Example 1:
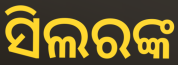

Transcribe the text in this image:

ସିଲରଙ୍କ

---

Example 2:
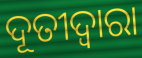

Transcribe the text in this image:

ଦୂତୀଦ୍ୱାରା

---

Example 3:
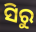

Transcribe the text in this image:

ସିରୁ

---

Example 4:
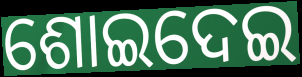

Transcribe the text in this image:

ଶୋଇଦେଇ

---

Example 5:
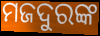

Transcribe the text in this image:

ମଜଦୁରଙ୍କ